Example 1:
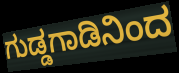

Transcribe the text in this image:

ಗುಡ್ಡಗಾಡಿನಿಂದ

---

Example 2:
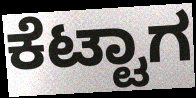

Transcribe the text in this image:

ಕೆಟ್ಟಾಗ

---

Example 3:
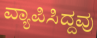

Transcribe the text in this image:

ವ್ಯಾಪಿಸಿದ್ದವು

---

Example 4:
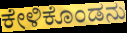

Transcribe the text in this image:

ಕೇಳಿಕೊಂಡನು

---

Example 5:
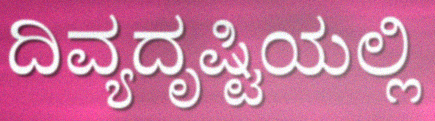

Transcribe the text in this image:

ದಿವ್ಯದೃಷ್ಟಿಯಲ್ಲಿ